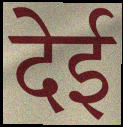
देई